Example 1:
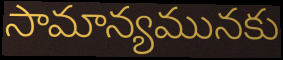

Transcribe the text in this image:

సామాన్యమునకు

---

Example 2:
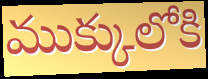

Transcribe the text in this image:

ముక్కులోకి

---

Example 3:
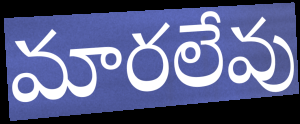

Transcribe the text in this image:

మారలేవు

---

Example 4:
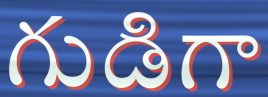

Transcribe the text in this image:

గుడిగా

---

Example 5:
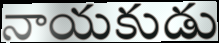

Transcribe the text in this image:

నాయకుడు